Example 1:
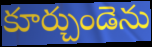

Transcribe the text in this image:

కూర్చుండెను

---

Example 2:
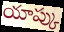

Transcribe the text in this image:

యాప్కు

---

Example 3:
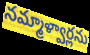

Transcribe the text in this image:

నమ్మాళ్వార్లను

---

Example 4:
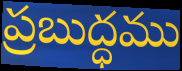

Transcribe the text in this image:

ప్రబుద్ధము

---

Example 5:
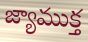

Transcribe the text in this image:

జ్యాముక్త